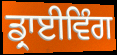
ਡ੍ਰਾਈਵਿੰਗ